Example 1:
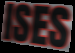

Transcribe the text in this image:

ISES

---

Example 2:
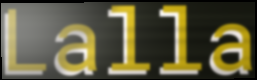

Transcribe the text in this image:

Lalla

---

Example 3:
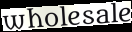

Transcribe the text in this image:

wholesale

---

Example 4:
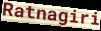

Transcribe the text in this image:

Ratnagiri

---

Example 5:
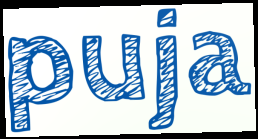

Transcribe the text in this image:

puja